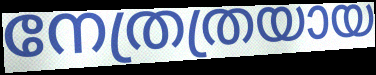
നേത്രത്രയായ